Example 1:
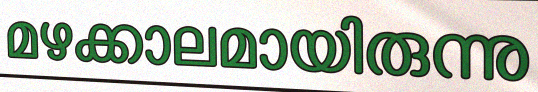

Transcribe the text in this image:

മഴക്കാലമായിരുന്നു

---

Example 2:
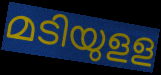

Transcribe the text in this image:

മടിയുളള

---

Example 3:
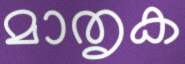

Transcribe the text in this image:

മാതൃക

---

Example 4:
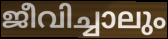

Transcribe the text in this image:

ജീവിച്ചാലും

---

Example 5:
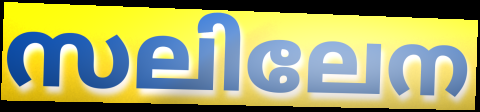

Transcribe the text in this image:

സലിലേന